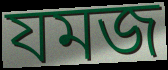
যমজ